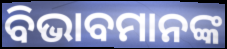
ବିଭାବମାନଙ୍କ